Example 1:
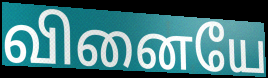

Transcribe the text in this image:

வினையே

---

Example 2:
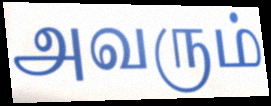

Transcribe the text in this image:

அவரும்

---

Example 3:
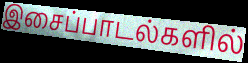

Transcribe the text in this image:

இசைப்பாடல்களில்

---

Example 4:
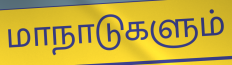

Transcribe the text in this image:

மாநாடுகளும்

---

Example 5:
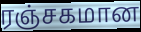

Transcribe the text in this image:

ரஞ்சகமான